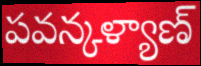
పవన్కళ్యాణ్